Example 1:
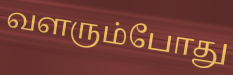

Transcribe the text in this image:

வளரும்போது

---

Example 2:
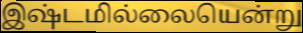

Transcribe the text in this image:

இஷ்டமில்லையென்று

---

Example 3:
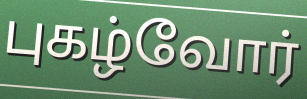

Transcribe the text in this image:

புகழ்வோர்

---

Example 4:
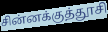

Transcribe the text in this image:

சின்னக்குத்தூசி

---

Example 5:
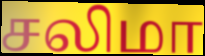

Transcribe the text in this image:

சலிமா